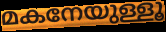
മകനേയുള്ളൂ